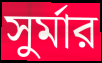
সুর্মার